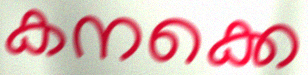
കനക്കെ